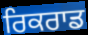
ਰਿਕਰਾਡ